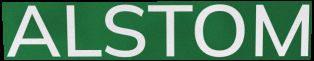
ALSTOM